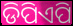
ଡିପିଏପି